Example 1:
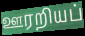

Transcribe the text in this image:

ஊரறியப்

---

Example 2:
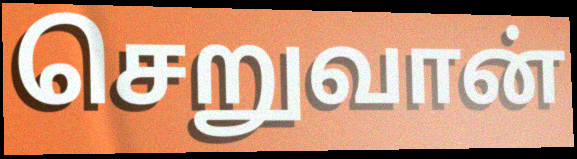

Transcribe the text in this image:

செறுவான்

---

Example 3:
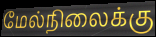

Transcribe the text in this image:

மேல்நிலைக்கு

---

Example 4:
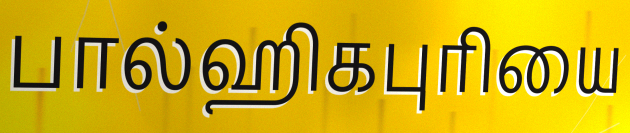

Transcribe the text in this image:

பால்ஹிகபுரியை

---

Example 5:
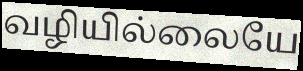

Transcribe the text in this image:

வழியில்லையே